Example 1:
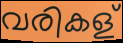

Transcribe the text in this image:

വരികള്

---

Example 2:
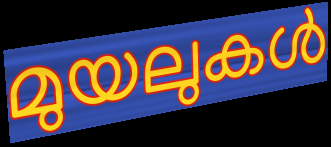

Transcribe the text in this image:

മുയലുകൾ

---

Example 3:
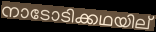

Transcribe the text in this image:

നാടോടിക്കഥയില്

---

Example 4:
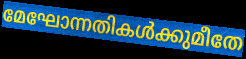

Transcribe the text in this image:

മേഘോന്നതികൾക്കുമീതേ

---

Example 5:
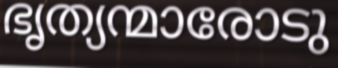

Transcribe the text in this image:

ഭൃത്യന്മാരോടു